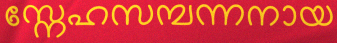
സ്നേഹസമ്പന്നനായ